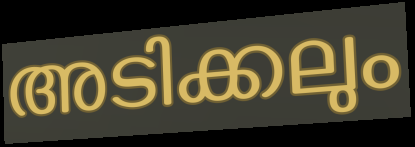
അടിക്കലും